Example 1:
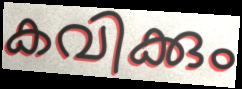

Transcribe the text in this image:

കവിക്കും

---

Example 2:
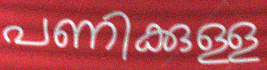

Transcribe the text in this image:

പണിക്കുള്ള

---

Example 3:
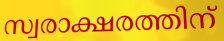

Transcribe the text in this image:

സ്വരാക്ഷരത്തിന്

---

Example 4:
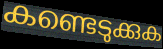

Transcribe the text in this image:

കണ്ടെടുക്കുക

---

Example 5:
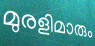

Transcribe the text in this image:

മുരളിമാരും